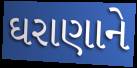
ઘરાણાને